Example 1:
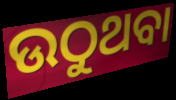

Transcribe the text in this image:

ଉଠୁଥବା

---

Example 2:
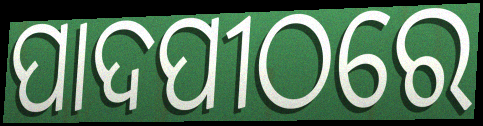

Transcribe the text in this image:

ପାଦପୀଠରେ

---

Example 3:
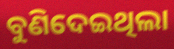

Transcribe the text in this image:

ବୁଣିଦେଇଥିଲା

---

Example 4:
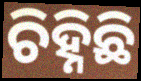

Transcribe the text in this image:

ଚିହ୍ନିଛି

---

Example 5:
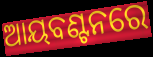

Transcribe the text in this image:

ଆୟବଣ୍ଟନରେ